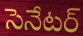
సెనేటర్